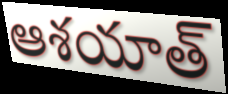
ఆశయాత్